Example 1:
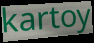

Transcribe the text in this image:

kartoy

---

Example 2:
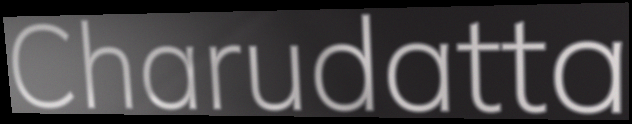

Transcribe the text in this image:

Charudatta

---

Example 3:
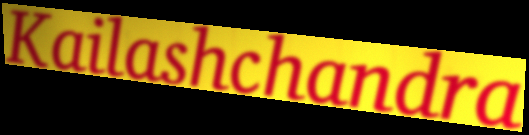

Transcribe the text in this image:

Kailashchandra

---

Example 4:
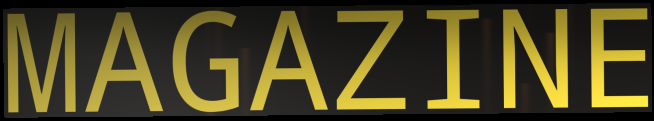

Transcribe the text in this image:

MAGAZINE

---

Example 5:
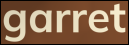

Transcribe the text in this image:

garret